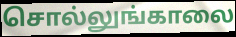
சொல்லுங்காலை